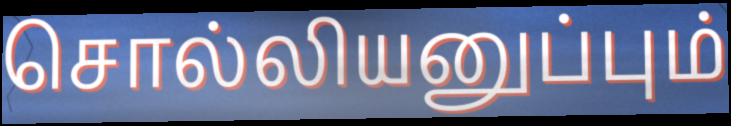
சொல்லியனுப்பும்